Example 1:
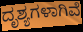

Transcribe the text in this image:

ದೃಶ್ಯಗಳಾಗಿವೆ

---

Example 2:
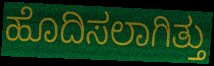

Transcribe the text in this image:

ಹೊದಿಸಲಾಗಿತ್ತು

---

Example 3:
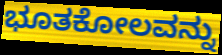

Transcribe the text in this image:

ಭೂತಕೋಲವನ್ನು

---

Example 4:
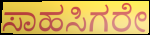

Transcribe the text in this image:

ಸಾಹಸಿಗರೇ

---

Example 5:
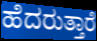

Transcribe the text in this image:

ಹೆದರುತ್ತಾರೆ